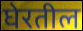
घेरतील